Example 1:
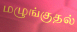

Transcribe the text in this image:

மழுங்குதல்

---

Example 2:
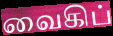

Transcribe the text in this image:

வைகிப்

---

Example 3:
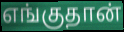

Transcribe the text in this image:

எங்குதான்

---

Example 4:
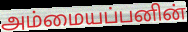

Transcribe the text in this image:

அம்மையப்பனின்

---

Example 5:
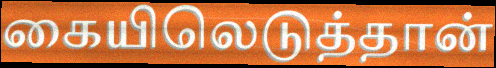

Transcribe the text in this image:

கையிலெடுத்தான்